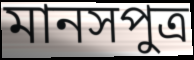
মানসপুত্ৰ